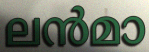
ലൻമാ